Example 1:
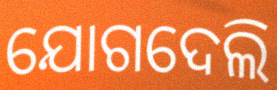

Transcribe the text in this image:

ଯୋଗଦେଲି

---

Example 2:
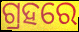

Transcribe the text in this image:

ଗ୍ରହରେ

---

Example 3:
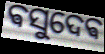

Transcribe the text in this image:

ଵସୁଦେଵ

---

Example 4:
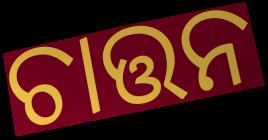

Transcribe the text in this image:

ଚାତ୍ତନ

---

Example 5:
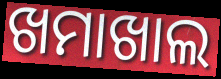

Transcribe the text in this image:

ଖମାଖାଲ